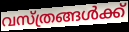
വസ്ത്രങ്ങൾക്ക്